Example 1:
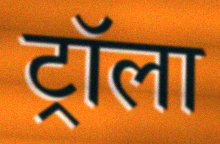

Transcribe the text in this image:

ट्रॉला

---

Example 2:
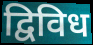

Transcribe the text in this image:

द्विविध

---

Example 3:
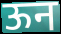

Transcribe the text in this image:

ऊन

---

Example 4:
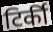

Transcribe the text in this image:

टिर्की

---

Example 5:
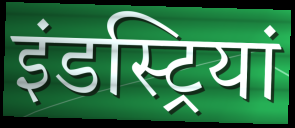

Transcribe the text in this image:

इंडस्ट्रियां